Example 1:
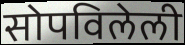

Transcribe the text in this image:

सोपविलेली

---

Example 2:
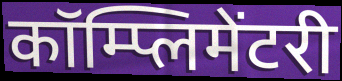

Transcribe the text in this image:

कॉम्प्लिमेंटरी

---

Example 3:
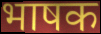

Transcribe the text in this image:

भाषक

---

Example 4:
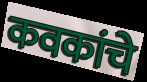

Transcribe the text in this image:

कवकांचे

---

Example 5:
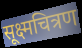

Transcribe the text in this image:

सूक्ष्मचित्रण